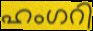
ഹംഗറി